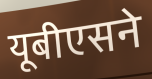
यूबीएसने